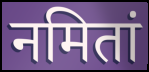
नमितां